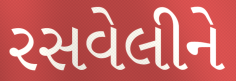
રસવેલીને